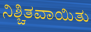
ನಿಶ್ಚಿತವಾಯಿತು